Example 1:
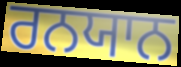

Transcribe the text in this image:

ਰਨਯਾਨ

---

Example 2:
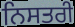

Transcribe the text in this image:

ਨਿਸਤਰੀ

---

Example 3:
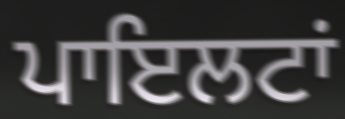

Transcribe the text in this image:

ਪਾਇਲਟਾਂ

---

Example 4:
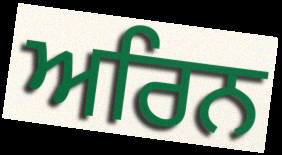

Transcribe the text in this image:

ਅਰਿਨ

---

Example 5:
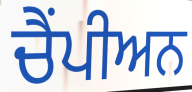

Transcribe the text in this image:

ਚੈਂਪੀਅਨ